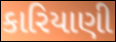
કારિયાણી